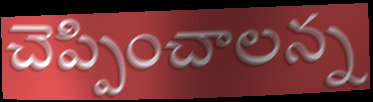
చెప్పించాలన్న